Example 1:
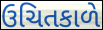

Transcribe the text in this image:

ઉચિતકાળે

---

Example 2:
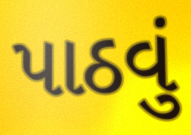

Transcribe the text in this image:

પાઠવું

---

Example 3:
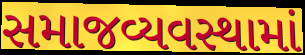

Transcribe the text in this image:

સમાજવ્યવસ્થામાં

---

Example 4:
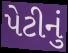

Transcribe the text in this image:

પેટીનું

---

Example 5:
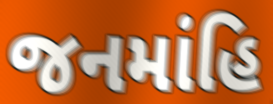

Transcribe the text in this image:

જનમાંહિ